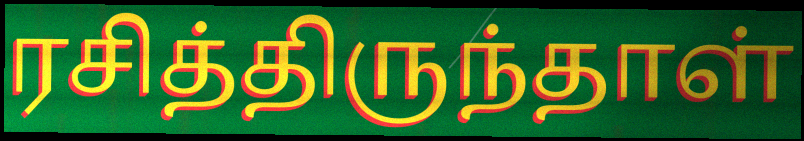
ரசித்திருந்தாள்